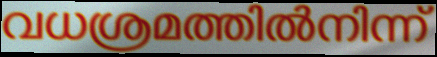
വധശ്രമത്തിൽനിന്ന്